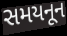
સમયનૂન